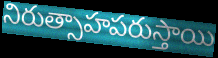
నిరుత్సాహపరుస్తాయి